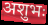
अशुभः